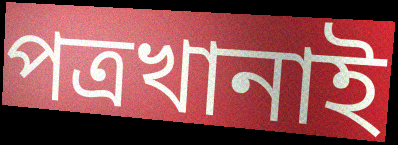
পত্রখানাই